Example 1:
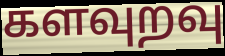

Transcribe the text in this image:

களவுறவு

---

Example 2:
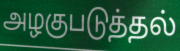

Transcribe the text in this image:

அழகுபடுத்தல்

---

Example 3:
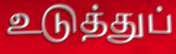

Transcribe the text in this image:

உடுத்துப்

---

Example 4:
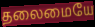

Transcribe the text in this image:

தலைமையே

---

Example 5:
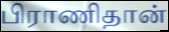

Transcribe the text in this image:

பிராணிதான்